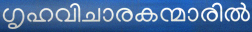
ഗൃഹവിചാരകന്മാരിൽ